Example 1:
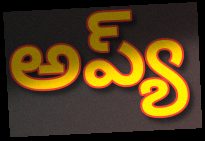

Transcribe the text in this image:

అప్య్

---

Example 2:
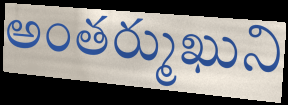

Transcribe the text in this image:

అంతర్ముఖుని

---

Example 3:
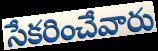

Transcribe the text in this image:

సేకరించేవారు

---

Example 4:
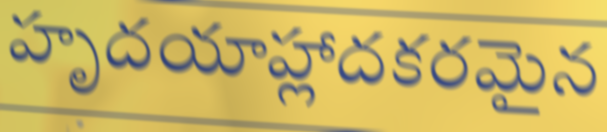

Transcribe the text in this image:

హృదయాహ్లాదకరమైన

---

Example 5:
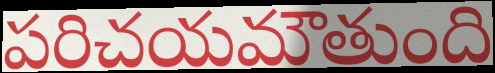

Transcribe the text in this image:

పరిచయమౌతుంది